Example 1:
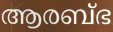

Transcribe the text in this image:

ആരബ്ഭ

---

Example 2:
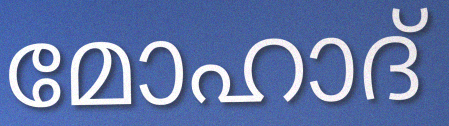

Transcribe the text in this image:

മോഹാദ്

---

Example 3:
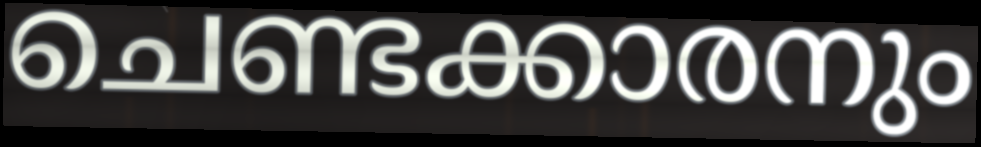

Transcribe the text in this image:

ചെണ്ടക്കാരനും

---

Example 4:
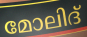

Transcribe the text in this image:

മോലിദ്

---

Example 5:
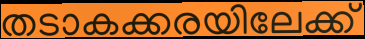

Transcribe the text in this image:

തടാകക്കരയിലേക്ക്